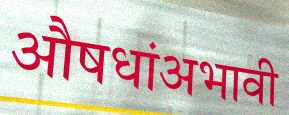
औषधांअभावी